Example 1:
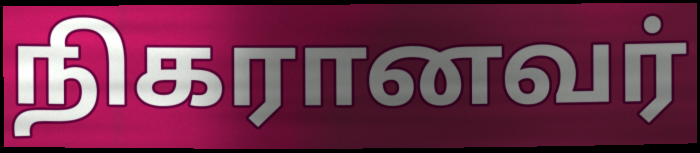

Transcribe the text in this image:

நிகரானவர்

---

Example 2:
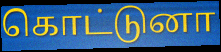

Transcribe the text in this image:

கொட்டுனா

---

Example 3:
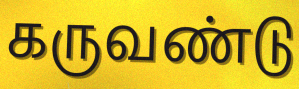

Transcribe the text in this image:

கருவண்டு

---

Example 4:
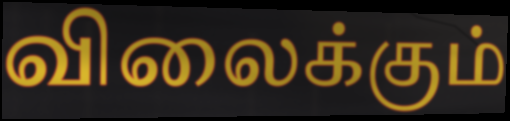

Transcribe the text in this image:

விலைக்கும்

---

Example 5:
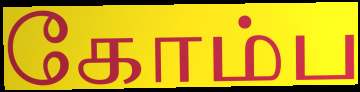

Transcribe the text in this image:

கோம்ப